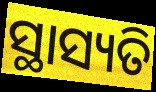
ସ୍ଥାସ୍ୟତି